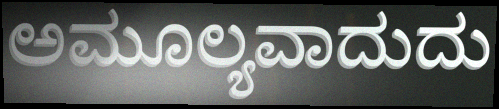
ಅಮೂಲ್ಯವಾದುದು